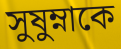
সুষুম্নাকে